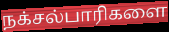
நக்சல்பாரிகளை